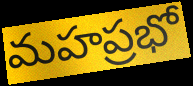
మహప్రభో